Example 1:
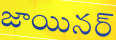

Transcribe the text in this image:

జాయినర్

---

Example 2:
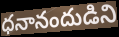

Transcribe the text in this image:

ధనానందుడిని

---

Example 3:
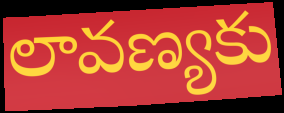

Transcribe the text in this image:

లావణ్యకు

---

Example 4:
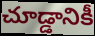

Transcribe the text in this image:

చూడ్డానికీ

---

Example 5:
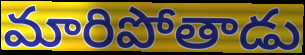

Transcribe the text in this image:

మారిపోతాడు